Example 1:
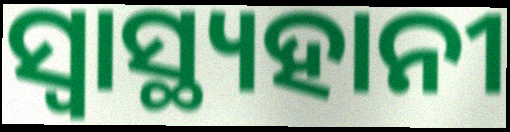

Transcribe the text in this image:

ସ୍ବାସ୍ଥ୍ୟହାନୀ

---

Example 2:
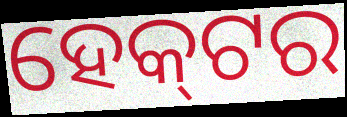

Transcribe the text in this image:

ହେକ୍‌ଟର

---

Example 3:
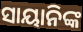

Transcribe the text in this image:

ସାୟାନିଙ୍କ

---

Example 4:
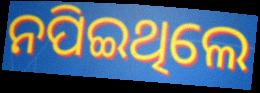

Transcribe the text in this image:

ନପିଇଥିଲେ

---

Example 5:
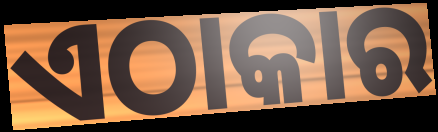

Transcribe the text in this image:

ଏଠାକାର